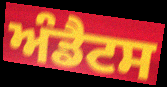
ਅੰਡੈਟਸ